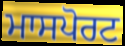
ਮਾਸਪੋਰਟ